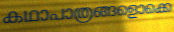
കഥാപാത്രങ്ങളൊക്കെ